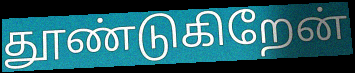
தூண்டுகிறேன்